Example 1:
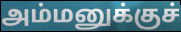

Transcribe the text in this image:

அம்மனுக்குச்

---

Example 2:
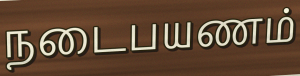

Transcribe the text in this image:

நடைபயணம்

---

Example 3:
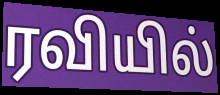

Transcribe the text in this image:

ரவியில்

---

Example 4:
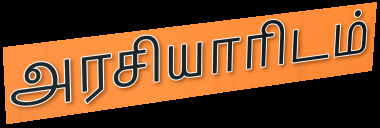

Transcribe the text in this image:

அரசியாரிடம்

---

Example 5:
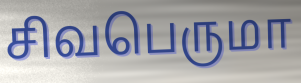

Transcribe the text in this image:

சிவபெருமா